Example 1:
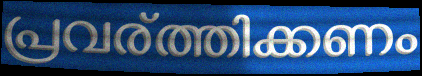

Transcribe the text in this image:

പ്രവര്ത്തിക്കണം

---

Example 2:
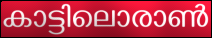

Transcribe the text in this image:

കാട്ടിലൊരാൺ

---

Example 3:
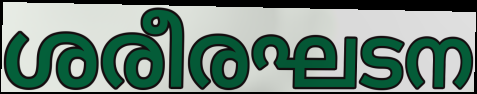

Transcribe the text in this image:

ശരീരഘടന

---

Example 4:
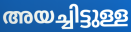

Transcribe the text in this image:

അയച്ചിട്ടുള്ള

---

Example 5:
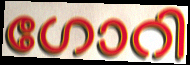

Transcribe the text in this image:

ഗോറി